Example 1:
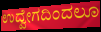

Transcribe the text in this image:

ಉದ್ವೇಗದಿಂದಲೂ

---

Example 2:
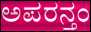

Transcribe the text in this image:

ಅಪರನ್ತಂ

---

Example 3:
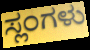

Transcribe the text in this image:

ಸ್ಲಂಗಳು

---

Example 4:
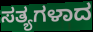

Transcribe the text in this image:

ಸತ್ಯಗಳಾದ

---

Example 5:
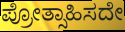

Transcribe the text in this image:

ಪ್ರೋತ್ಸಾಹಿಸದೇ